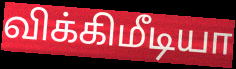
விக்கிமீடியா